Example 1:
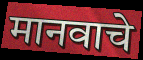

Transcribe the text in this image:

मानवाचे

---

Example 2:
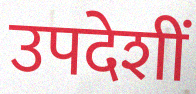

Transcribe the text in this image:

उपदेशीं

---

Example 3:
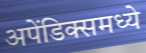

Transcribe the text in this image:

अपेंडिक्समध्ये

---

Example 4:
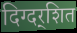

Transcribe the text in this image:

दिग्दर्शित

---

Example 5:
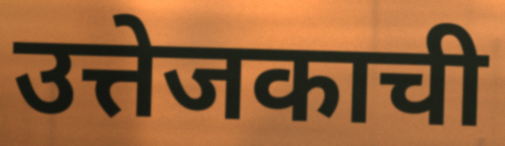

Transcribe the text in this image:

उत्तेजकाची